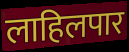
लाहिलपार